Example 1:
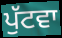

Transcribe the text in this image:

ਪੁੱਟਵਾ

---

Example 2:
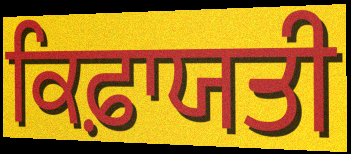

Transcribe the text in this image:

ਕਿਫ਼ਾਯਤੀ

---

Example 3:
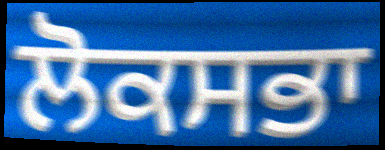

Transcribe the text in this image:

ਲੋਕਸਭਾ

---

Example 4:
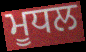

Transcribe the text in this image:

ਮੂਧਲ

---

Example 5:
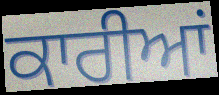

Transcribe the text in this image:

ਕਾਰੀਆਂ